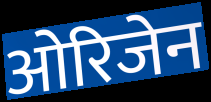
ओरिजेन